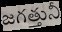
జగత్తునీ